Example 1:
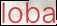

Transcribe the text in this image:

loba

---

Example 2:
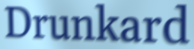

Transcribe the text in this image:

Drunkard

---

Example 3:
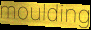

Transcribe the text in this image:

moulding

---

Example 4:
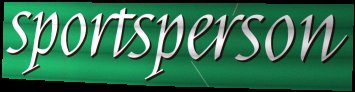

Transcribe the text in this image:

sportsperson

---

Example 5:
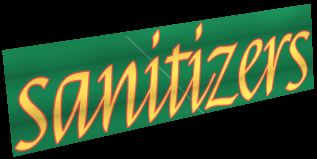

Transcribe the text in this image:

sanitizers